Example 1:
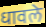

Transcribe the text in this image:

धावले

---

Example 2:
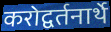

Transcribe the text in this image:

करोद्वर्तनार्थे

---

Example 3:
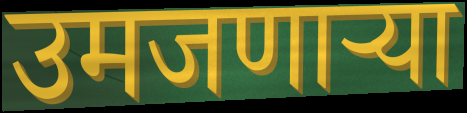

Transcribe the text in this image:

उमजणाऱ्या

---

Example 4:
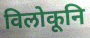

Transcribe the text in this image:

विलोकूनि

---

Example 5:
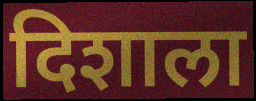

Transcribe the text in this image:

दिशाला